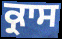
ਕ੍ਰਾਸ